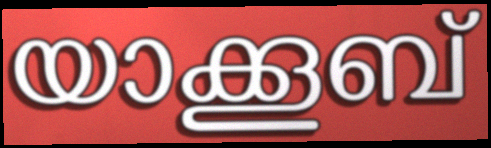
യാക്കൂബ്